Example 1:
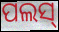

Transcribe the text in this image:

ପଲସ୍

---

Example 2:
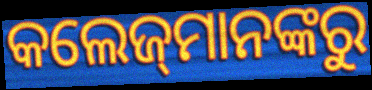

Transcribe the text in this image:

କଲେଜ୍‌ମାନଙ୍କରୁ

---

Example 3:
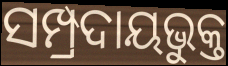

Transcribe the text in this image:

ସମ୍ପ୍ରଦାୟଭୁକ୍ତ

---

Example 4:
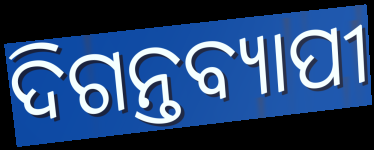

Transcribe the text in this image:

ଦିଗନ୍ତବ୍ୟାପୀ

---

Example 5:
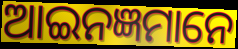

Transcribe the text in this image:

ଆଇନଜ୍ଞମାନେ